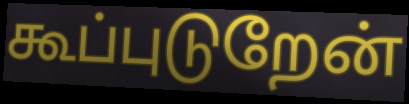
கூப்புடுறேன்